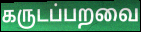
கருடப்பறவை